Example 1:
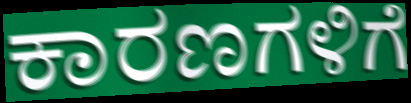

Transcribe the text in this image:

ಕಾರಣಗಳಿಗೆ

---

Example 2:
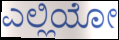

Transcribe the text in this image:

ಎಲ್ಲಿಯೋ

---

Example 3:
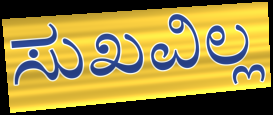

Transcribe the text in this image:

ಸುಖವಿಲ್ಲ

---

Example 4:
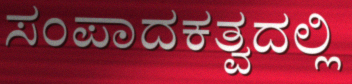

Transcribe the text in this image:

ಸಂಪಾದಕತ್ವದಲ್ಲಿ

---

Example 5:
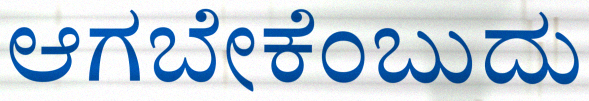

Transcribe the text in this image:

ಆಗಬೇಕೆಂಬುದು